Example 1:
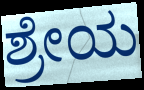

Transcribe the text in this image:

ಶ್ರೇಯ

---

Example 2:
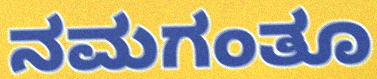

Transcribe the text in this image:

ನಮಗಂತೂ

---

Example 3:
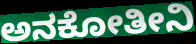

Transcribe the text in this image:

ಅನಕೋತೀನಿ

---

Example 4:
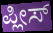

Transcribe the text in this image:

ಪ್ಲೀಸ್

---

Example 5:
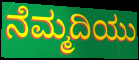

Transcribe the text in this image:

ನೆಮ್ಮದಿಯು